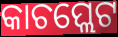
କାଚପ୍ଲେଟ